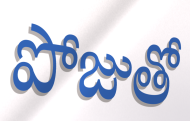
పోజుతో